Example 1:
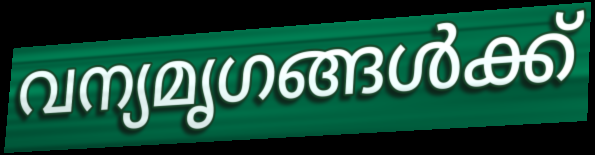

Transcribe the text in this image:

വന്യമൃഗങ്ങൾക്ക്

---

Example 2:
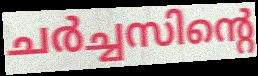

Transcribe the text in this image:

ചർച്ചസിന്റെ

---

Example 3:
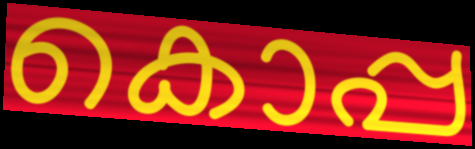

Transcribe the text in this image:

കൊപ്പ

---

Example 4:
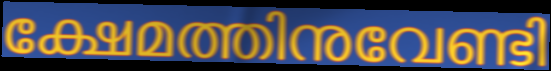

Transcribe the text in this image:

ക്ഷേമത്തിനുവേണ്ടി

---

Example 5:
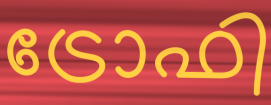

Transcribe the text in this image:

ട്രോഫി